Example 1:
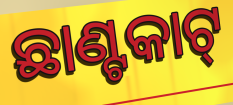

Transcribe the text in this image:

ଛାଣ୍ଟକାଟ୍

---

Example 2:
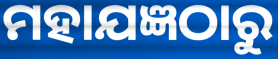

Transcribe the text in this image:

ମହାଯଜ୍ଞଠାରୁ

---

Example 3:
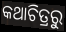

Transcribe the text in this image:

କଥାଚିତ୍ରରୁ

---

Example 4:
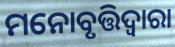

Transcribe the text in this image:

ମନୋବୃତ୍ତିଦ୍ଵାରା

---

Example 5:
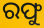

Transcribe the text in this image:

ରଫୁ